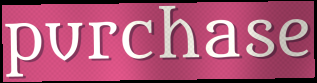
purchase